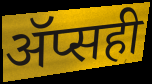
ॲप्सही